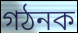
গঠনক